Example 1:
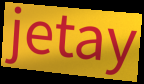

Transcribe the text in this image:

jetay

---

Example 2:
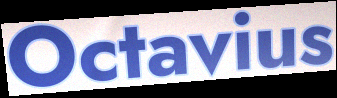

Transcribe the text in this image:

Octavius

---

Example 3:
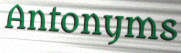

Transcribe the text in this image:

Antonyms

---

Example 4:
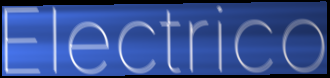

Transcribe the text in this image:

Electrico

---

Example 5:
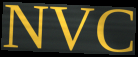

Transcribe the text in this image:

NVC